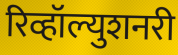
रिव्हॉल्युशनरी